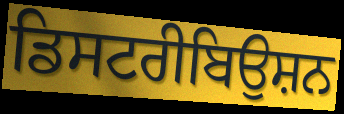
ਡਿਸਟਰੀਬਿਉਸ਼ਨ